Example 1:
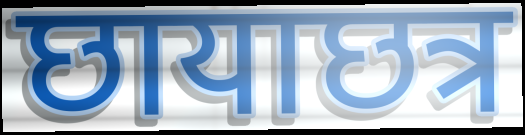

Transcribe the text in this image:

छायाछत्र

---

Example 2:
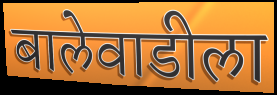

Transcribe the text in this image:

बालेवाडीला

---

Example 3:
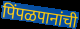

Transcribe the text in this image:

पिंपळपानांची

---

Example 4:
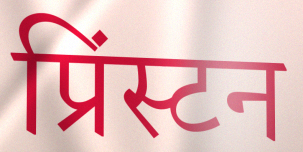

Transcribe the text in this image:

प्रिंस्टन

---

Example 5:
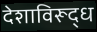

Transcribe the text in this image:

देशाविरूद्ध